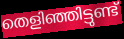
തെളിഞ്ഞിട്ടുണ്ട്